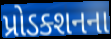
પ્રોડક્શનના